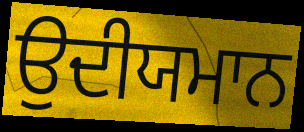
ਉਦੀਯਮਾਨ